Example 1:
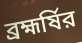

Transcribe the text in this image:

ব্রহ্মর্ষির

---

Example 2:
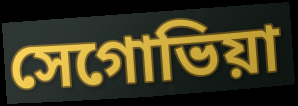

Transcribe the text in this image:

সেগোভিয়া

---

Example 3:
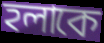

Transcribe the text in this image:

হলাকে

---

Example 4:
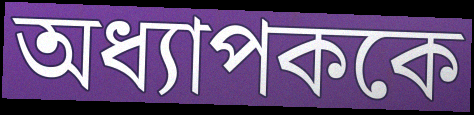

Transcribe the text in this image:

অধ্যাপককে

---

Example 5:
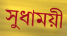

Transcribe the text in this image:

সুধাময়ী